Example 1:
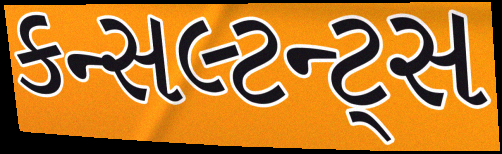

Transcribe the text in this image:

કન્સલ્ટન્ટ્સ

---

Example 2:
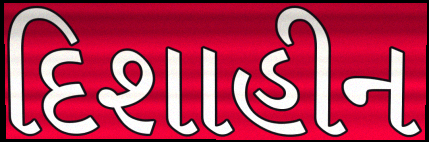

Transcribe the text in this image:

દિશાહીન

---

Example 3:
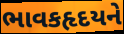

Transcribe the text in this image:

ભાવકહૃદયને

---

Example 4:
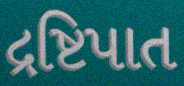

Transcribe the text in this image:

દ્રષ્ટિપાત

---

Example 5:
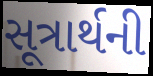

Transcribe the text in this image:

સૂત્રાર્થની